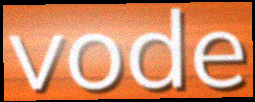
vode